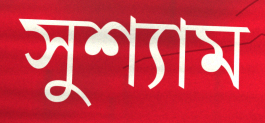
সুশ্যাম